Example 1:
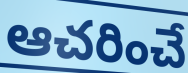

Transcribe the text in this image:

ఆచరించే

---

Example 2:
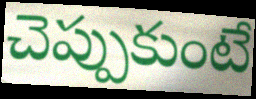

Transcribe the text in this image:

చెప్పుకుంటే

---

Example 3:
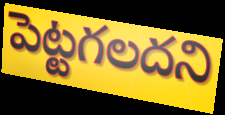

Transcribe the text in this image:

పెట్టగలదని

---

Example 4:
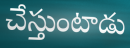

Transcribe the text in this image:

చేస్తుంటాడు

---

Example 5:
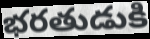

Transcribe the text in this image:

భరతుడుకి